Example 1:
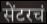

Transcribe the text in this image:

सेंटरचं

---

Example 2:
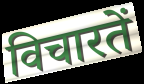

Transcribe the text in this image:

विचारतें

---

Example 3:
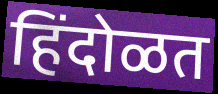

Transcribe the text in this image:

हिंदोळत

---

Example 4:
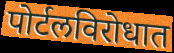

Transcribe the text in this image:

पोर्टलविरोधात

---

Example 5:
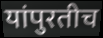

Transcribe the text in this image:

यांपुरतीच